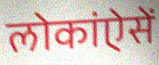
लोकांऐसें